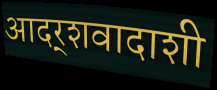
आदर्शवादाशी